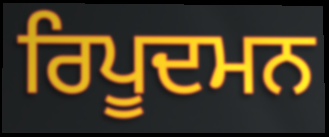
ਰਿਪੂਦਮਨ